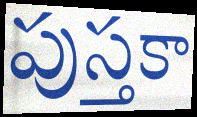
పుస్తకా